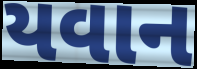
યવાન